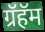
ग्रॅहॅम